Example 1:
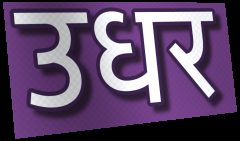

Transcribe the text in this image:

उधर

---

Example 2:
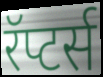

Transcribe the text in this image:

रॅप्टर्स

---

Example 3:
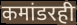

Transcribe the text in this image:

कमांडरही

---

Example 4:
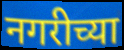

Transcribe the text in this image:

नगरीच्या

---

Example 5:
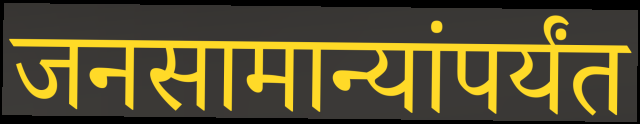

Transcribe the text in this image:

जनसामान्यांपर्यंत